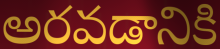
అరవడానికి